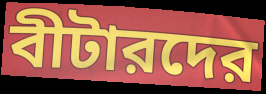
বীটারদের